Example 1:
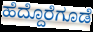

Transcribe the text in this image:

ಹೆದ್ದೊರೆಗೂಡೆ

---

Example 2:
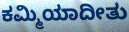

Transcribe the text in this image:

ಕಮ್ಮಿಯಾದೀತು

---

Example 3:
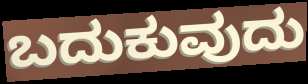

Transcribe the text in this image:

ಬದುಕುವುದು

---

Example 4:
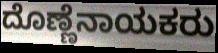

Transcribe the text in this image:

ದೊಣ್ಣೆನಾಯಕರು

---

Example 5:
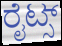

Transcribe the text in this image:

ರೈಟ್ಸ್